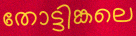
തോട്ടിങ്കലെ